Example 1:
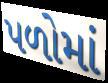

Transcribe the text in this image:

પળોમાં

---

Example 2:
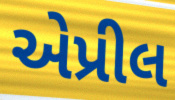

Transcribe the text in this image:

એપ્રીલ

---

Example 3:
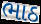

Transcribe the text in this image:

ભાઠ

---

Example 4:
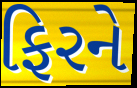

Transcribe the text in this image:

ફિરને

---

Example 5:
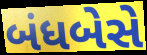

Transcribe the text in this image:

બંધબેસે